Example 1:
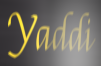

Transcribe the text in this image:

Yaddi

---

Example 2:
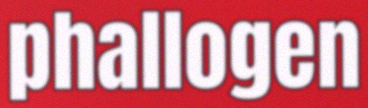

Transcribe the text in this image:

phallogen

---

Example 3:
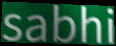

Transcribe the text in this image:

sabhi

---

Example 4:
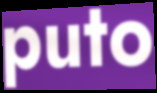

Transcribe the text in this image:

puto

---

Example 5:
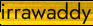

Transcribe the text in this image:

irrawaddy